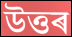
উত্তৰ